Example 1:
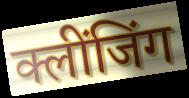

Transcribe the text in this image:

क्लींजिंग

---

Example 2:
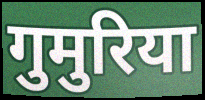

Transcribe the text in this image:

गुमुरिया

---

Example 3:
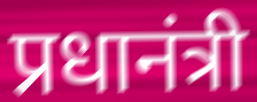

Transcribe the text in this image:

प्रधानंत्री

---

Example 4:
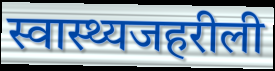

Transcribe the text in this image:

स्वास्थ्यजहरीली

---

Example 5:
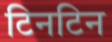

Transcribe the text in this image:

टिनटिन